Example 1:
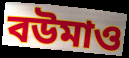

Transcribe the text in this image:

বউমাও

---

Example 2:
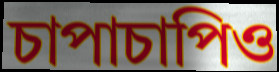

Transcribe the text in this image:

চাপাচাপিও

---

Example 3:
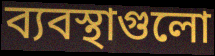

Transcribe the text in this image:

ব্যবস্থাগুলো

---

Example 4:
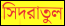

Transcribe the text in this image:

সিদরাতুল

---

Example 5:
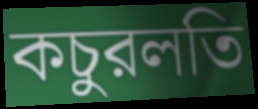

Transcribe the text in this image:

কচুরলতি